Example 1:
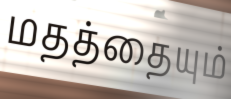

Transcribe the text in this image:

மதத்தையும்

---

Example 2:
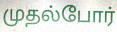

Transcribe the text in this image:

முதல்போர்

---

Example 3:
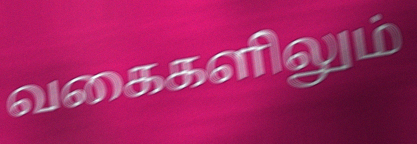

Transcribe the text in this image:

வகைகளிலும்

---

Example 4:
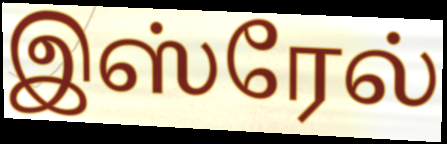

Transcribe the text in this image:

இஸ்ரேல்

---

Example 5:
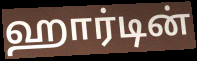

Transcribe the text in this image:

ஹார்டின்